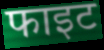
फाइट